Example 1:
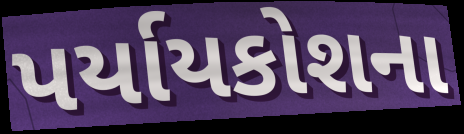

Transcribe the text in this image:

પર્યાયકોશના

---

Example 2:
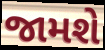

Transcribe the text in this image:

જામશે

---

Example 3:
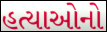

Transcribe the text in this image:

હત્યાઓનો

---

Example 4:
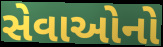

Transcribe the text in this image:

સેવાઓનો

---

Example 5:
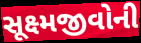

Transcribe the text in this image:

સૂક્ષ્મજીવોની